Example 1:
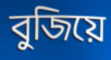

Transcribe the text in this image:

বুজিয়ে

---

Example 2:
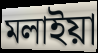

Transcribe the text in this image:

মলাইয়া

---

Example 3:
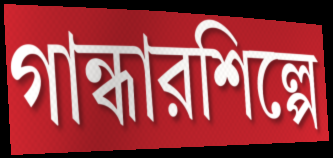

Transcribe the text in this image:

গান্ধারশিল্পে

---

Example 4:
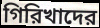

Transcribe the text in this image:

গিরিখাদের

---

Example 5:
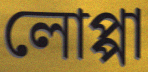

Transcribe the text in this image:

লোপ্পা